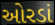
ઓરડાં